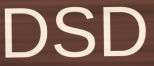
DSD